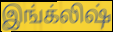
இங்க்லிஷ்